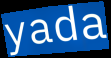
yada